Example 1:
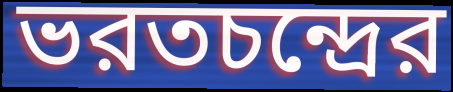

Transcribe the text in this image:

ভরতচন্দ্রের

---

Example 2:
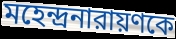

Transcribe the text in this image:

মহেন্দ্রনারায়ণকে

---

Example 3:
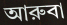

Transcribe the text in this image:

আরুবা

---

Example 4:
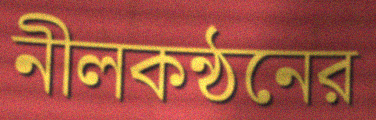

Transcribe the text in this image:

নীলকন্ঠনের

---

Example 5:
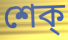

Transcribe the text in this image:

শেক্